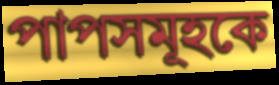
পাপসমূহকে